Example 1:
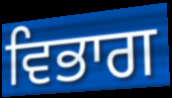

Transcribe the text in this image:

ਵਿਭਾਗ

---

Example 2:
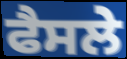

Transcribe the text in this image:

ਫੈਸਲੇ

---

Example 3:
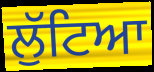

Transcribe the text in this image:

ਲੁੱਟਿਆ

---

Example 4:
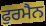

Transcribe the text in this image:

ਫੁਰਮੈਨ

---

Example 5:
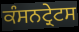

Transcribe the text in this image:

ਕੰਸਨਟ੍ਰੇਟਸ